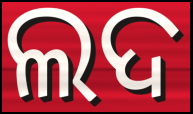
ଲଦ